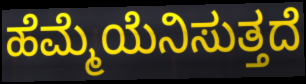
ಹೆಮ್ಮೆಯೆನಿಸುತ್ತದೆ